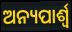
ଅନ୍ୟପାର୍ଶ୍ୱ